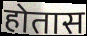
होतास